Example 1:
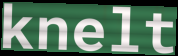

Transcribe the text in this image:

knelt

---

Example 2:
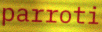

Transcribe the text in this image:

parroti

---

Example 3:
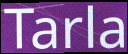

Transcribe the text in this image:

Tarla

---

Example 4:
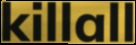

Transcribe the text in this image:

killall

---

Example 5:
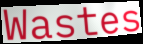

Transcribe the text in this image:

Wastes